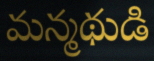
మన్మథుడి